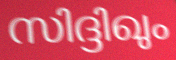
സിദ്ദിഖും